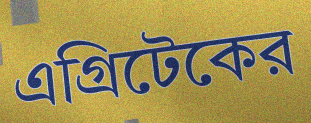
এগ্রিটেকের